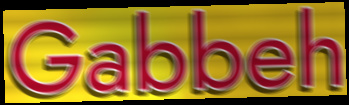
Gabbeh